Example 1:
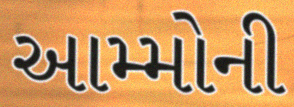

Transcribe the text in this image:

આમ્મોની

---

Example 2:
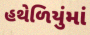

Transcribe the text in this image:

હથેળિયુંમાં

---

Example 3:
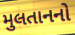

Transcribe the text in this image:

મુલતાનનો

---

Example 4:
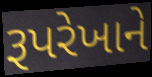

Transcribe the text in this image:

રૂપરેખાને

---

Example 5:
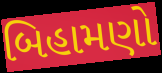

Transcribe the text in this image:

બિહામણો